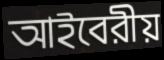
আইবেরীয়